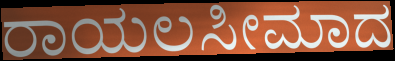
ರಾಯಲಸೀಮಾದ